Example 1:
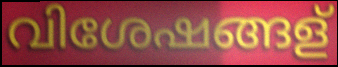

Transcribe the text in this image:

വിശേഷങ്ങള്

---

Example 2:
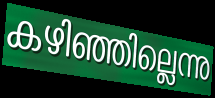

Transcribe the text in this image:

കഴിഞ്ഞില്ലെന്നു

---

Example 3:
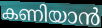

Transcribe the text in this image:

കണിയാൻ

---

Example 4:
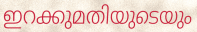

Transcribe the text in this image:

ഇറക്കുമതിയുടെയും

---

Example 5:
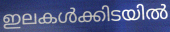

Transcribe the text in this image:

ഇലകൾക്കിടയിൽ